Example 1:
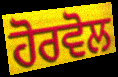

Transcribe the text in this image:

ਹੋਰਵੋਲ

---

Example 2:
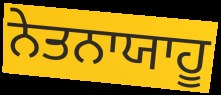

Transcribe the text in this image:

ਨੇਤਨਾਯਾਹੂ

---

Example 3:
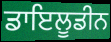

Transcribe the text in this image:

ਡਾਇਲੂਡੀਨ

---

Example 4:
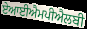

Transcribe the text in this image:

ਏਆਈਐਮਪੀਐਲਬੀ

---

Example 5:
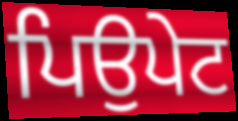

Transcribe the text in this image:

ਪਿਉਪੇਟ